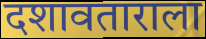
दशावताराला